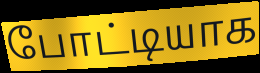
போட்டியாக